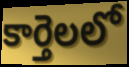
కార్తెలలో